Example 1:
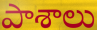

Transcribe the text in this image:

పాశాలు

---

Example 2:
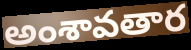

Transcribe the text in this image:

అంశావతార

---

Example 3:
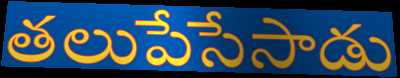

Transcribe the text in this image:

తలుపేసేసాడు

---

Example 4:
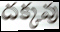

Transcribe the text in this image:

దక్కవు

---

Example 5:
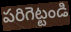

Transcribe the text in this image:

పరిగెట్టండి